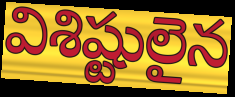
విశిష్టులైన